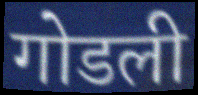
गोडली